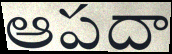
ఆపదా